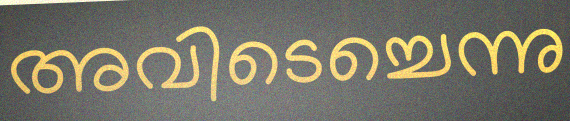
അവിടെച്ചെന്നു